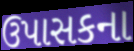
ઉપાસકના